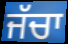
ਜੱਚਾ